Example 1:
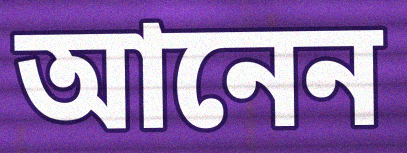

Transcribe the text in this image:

আনেন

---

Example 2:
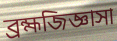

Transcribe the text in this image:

ব্রহ্মজিজ্ঞাসা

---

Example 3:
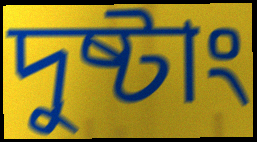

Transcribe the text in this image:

দুষ্টাং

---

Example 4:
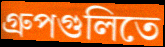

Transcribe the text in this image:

গ্রুপগুলিতে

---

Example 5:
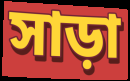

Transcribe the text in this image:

সাড়া